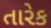
તારેક